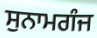
ਸੁਨਾਮਗੰਜ